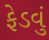
ફેડવું